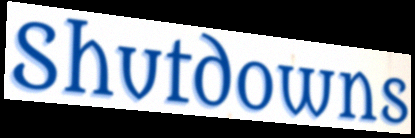
Shutdowns